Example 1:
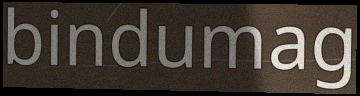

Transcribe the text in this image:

bindumag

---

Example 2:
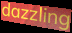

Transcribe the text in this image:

dazzling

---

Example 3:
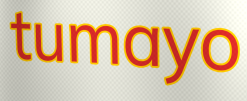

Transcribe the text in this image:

tumayo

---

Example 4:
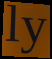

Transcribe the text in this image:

ly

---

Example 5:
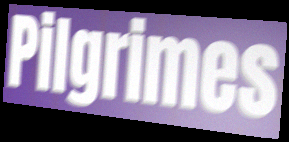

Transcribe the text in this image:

Pilgrimes